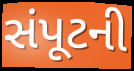
સંપૂટની